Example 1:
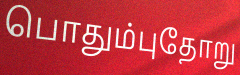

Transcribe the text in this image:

பொதும்புதோறு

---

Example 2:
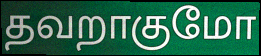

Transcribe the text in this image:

தவறாகுமோ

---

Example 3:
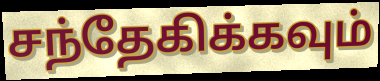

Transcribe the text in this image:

சந்தேகிக்கவும்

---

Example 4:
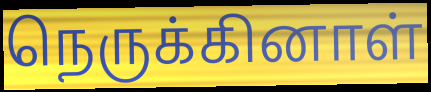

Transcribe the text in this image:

நெருக்கினாள்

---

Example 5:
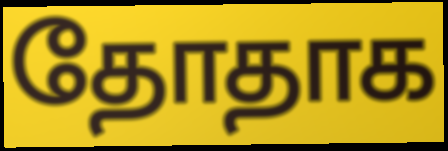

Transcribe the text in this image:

தோதாக